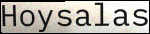
Hoysalas